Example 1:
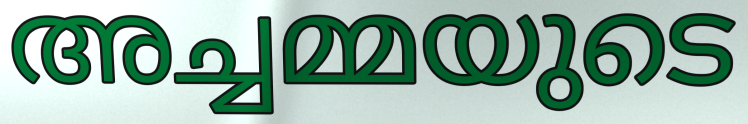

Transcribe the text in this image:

അച്ചമ്മയുടെ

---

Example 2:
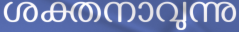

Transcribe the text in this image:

ശക്തനാവുന്നു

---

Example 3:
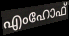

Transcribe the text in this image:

എംഹോഫ്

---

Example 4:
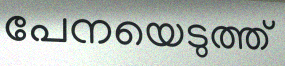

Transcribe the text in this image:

പേനയെടുത്ത്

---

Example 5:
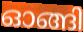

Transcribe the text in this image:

ഓങ്ങി